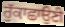
ਰੁੱਕਾਛਾਉਣੀ